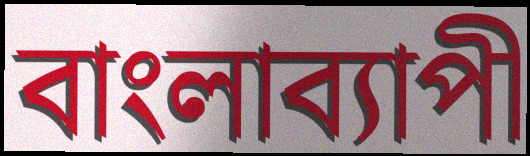
বাংলাব্যাপী